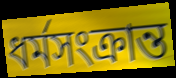
ধর্মসংক্রান্ত